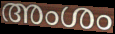
അംശം